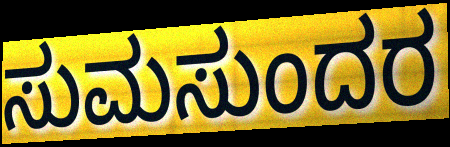
ಸುಮಸುಂದರ